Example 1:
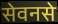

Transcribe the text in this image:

सेवनसे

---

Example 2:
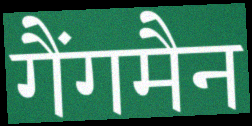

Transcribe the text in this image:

गैंगमैन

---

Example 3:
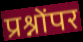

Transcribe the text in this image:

प्रश्नोंपर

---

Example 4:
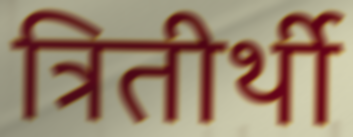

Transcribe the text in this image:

त्रितीर्थी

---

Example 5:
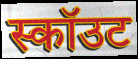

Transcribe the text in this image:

स्कॉउट